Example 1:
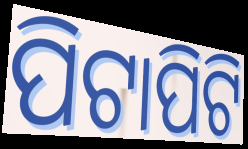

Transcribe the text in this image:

ପିଟାପିଟି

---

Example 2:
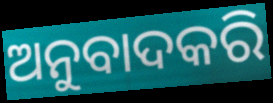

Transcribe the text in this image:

ଅନୁବାଦକରି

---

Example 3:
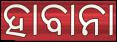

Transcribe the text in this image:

ହାବାନା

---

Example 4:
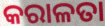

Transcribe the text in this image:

କରାଳତା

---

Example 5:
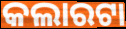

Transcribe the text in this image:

କଲାରଟା